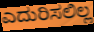
ಎದುರಿಸಲಿಲ್ಲ